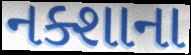
નક્શાના